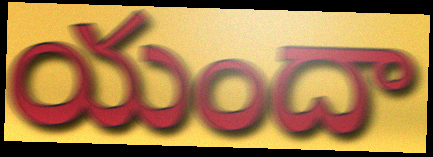
యందా